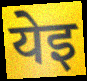
येइ